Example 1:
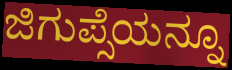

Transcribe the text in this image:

ಜಿಗುಪ್ಸೆಯನ್ನೂ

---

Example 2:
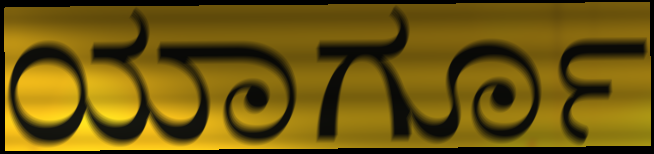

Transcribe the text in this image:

ಯಾರ್ಗೂ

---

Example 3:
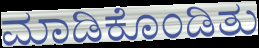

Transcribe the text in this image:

ಮಾಡಿಕೊಂಡಿತು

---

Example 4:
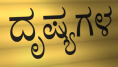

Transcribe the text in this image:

ದೃಷ್ಯಗಳ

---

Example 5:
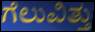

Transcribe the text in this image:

ಗೆಲುವಿತ್ತು